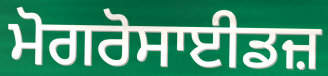
ਮੋਗਰੋਸਾਈਡਜ਼